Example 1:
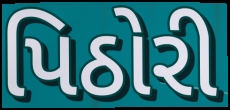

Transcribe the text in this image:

પિઠોરી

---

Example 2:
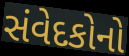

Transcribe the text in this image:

સંવેદકોનો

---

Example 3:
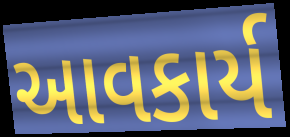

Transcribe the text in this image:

આવકાર્ય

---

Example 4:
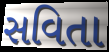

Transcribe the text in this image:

સવિતા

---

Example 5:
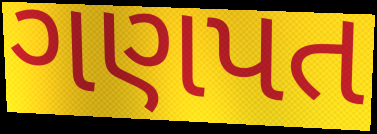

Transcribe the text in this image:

ગણપત